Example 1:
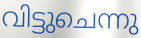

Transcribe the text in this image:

വിട്ടുചെന്നു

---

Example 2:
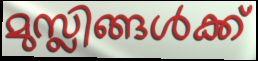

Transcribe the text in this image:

മുസ്ലിങ്ങൾക്ക്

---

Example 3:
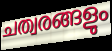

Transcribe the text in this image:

ചത്വരങ്ങളും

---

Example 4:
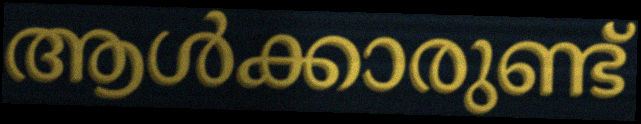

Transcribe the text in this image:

ആൾക്കാരുണ്ട്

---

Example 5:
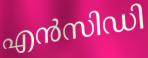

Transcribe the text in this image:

എൻസിഡി